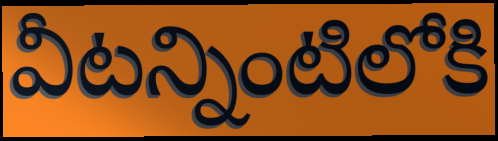
వీటన్నింటిలోకి